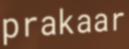
prakaar